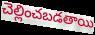
చెల్లించబడతాయి